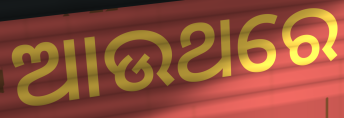
ଆଉଥରେ